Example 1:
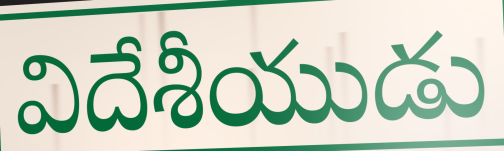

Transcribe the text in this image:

విదేశీయుడు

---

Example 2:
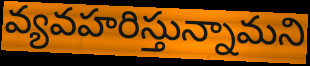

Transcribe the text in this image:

వ్యవహరిస్తున్నామని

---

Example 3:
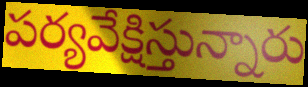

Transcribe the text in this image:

పర్యవేక్షిస్తున్నారు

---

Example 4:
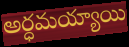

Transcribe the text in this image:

అర్ధమయ్యాయి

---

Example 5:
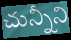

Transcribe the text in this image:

చున్నీని